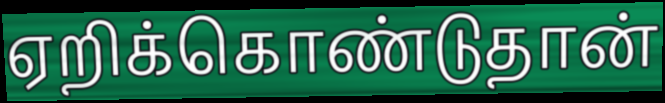
ஏறிக்கொண்டுதான்